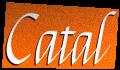
Catal